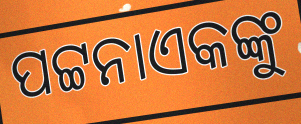
ପଟ୍ଟନାଏକଙ୍କୁ